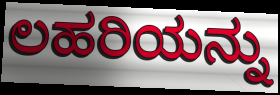
ಲಹರಿಯನ್ನು